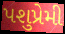
પશુપ્રેમી